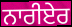
ਨਾਰੀਏਰ